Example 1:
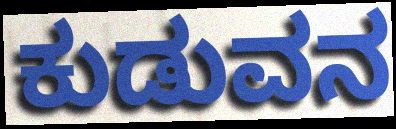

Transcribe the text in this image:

ಕುಡುವನ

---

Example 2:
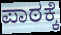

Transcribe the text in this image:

ಪಾಠಕ್ಕೆ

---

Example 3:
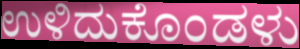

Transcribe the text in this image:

ಉಳಿದುಕೊಂಡಳು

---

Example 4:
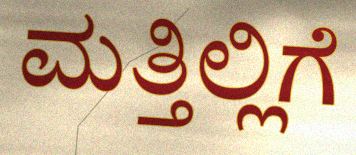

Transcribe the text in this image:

ಮತ್ತಿಲ್ಲಿಗೆ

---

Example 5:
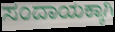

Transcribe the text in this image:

ಸಂದಾಯಕ್ಕಾಗಿ